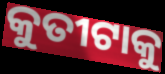
କୁତୀଟାକୁ